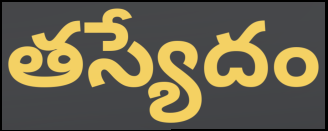
తస్యేదం